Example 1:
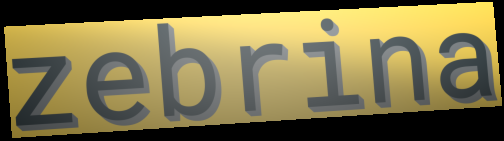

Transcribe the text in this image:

zebrina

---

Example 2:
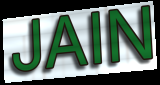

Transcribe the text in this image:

JAIN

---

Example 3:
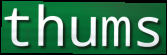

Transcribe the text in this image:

thums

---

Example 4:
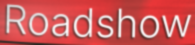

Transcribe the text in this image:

Roadshow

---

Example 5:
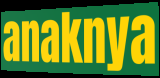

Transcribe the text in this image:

anaknya